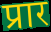
प्रार